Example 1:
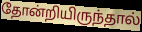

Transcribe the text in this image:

தோன்றியிருந்தால்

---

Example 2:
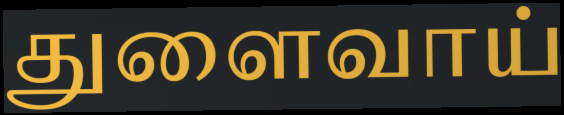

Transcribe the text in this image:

துளைவாய்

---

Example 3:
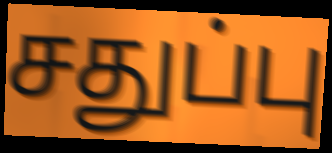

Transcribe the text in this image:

சதுப்பு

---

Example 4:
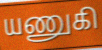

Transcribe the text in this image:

யணுகி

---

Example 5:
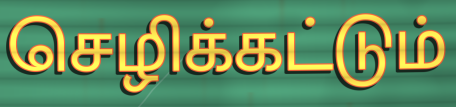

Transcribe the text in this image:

செழிக்கட்டும்